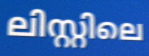
ലിസ്റ്റിലെ